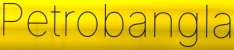
Petrobangla